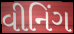
વીનિંગ